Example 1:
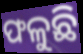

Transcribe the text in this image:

ଫଳୁଛି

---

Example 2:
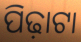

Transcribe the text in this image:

ପିଢ଼ାଟା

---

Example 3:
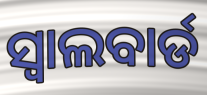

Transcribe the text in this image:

ସ୍ୱାଲବାର୍ଡ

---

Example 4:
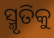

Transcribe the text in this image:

ସ୍ମୃତିକୁ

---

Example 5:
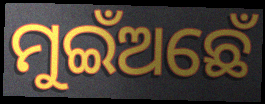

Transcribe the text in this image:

ମୁଇଁଅଛେଁ